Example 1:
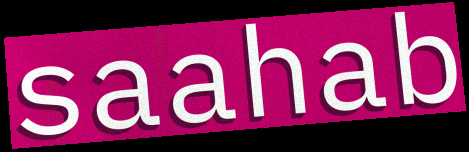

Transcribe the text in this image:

saahab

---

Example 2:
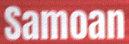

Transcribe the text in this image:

Samoan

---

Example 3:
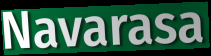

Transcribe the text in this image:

Navarasa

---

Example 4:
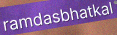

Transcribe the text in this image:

ramdasbhatkal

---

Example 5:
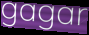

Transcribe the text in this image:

gagar